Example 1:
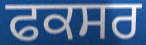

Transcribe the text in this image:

ਫਕਸਰ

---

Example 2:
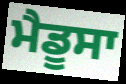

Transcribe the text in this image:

ਮੈਡੂਸਾ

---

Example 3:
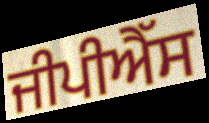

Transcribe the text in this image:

ਜੀਪੀਐੱਸ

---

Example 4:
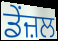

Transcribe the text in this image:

ਡੇਂਜ਼ਲ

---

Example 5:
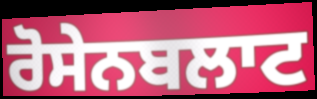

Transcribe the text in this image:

ਰੋਸੇਨਬਲਾਟ